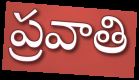
ప్రవాతి